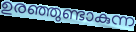
ഉരഞ്ഞുണ്ടാകുന്ന